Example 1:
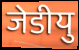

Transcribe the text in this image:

जेडीयु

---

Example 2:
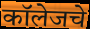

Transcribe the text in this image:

कॉलेजचे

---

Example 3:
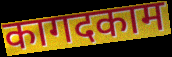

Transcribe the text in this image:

कागदकाम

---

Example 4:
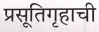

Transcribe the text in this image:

प्रसूतिगृहाची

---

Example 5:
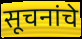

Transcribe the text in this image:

सूचनांचे